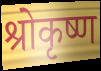
श्रोकृष्ण